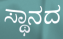
ಸ್ಥಾನದ